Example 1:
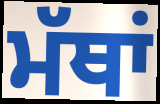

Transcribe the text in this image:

ਮੱਥਾਂ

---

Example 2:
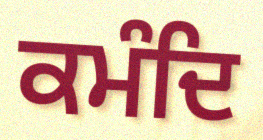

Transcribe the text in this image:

ਕਮੰਦਿ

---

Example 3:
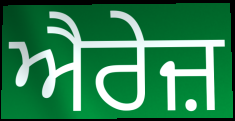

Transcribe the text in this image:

ਐਰੇਜ਼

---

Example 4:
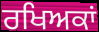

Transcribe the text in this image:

ਰਖਿਅਕਾਂ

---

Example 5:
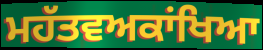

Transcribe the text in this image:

ਮਹੱਤਵਅਕਾਂਖਿਆ